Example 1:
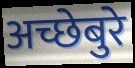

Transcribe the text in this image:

अच्छेबुरे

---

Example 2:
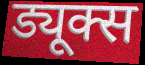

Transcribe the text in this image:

ड्यूक्स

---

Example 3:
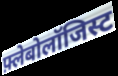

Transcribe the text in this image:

फ़्लेबोलॉजिस्ट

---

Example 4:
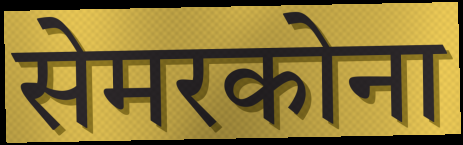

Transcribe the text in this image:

सेमरकोना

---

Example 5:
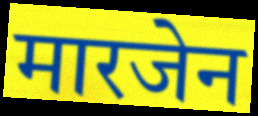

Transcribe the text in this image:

मारजेन